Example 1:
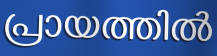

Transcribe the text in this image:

പ്രായത്തിൽ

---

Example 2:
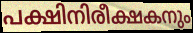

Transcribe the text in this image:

പക്ഷിനിരീക്ഷകനും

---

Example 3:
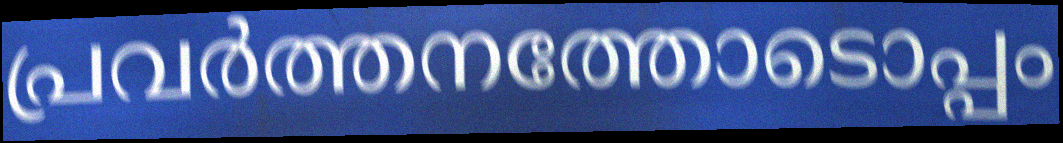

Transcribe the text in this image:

പ്രവർത്തനത്തോടൊപ്പം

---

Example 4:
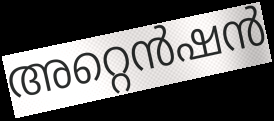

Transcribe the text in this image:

അറ്റെൻഷൻ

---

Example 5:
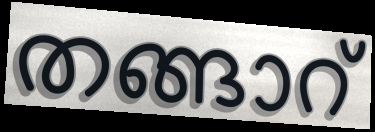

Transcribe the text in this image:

തങ്ങാറ്